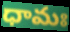
ధామః